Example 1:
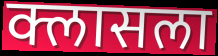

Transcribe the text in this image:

क्लासला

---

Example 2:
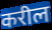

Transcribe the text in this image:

करील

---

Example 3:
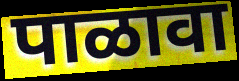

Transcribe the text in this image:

पाळावा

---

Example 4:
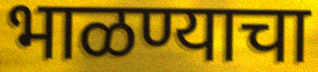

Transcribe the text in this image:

भाळण्याचा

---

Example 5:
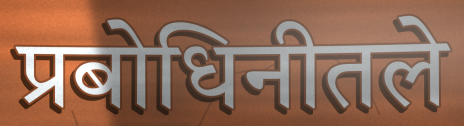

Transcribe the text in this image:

प्रबोधिनीतले